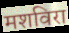
मशविरा